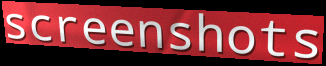
screenshots